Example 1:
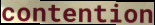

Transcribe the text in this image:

contention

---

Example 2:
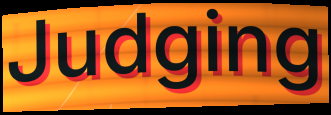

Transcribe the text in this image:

Judging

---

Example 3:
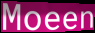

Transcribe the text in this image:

Moeen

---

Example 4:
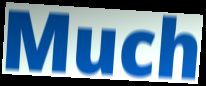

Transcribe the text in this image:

Much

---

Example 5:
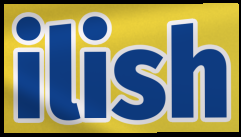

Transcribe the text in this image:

ilish